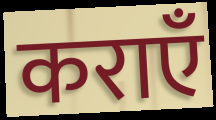
कराएँ